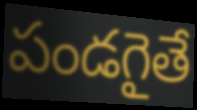
పండగైతే